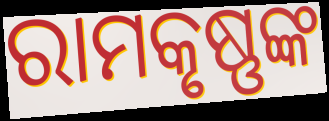
ରାମକୃଷ୍ଣଙ୍କ